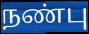
நண்பு